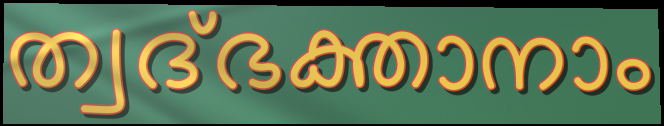
ത്വദ്ഭക്താനാം